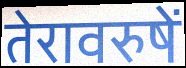
तेरावरुषें